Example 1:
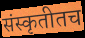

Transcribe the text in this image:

संस्कृतीतच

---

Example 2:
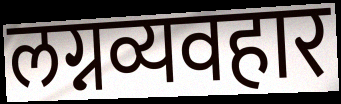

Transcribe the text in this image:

लग्नव्यवहार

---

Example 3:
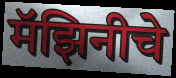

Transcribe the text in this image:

मॅझिनीचे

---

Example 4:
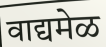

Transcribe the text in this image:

वाद्यमेळ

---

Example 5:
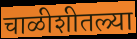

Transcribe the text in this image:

चाळीशीतल्या